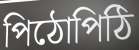
পিঠোপিঠি